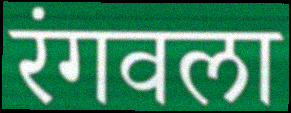
रंगवला